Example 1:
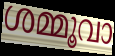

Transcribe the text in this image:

ശമ്മൂവാ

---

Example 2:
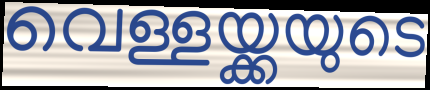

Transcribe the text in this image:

വെള്ളയ്ക്കയുടെ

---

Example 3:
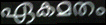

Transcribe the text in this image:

ഏകമതം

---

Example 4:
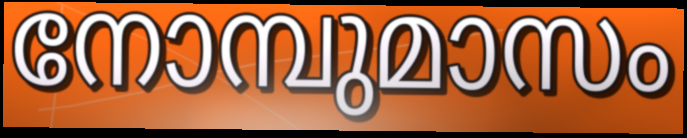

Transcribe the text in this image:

നോമ്പുമാസം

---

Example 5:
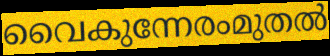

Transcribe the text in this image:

വൈകുന്നേരംമുതൽ